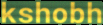
kshobh